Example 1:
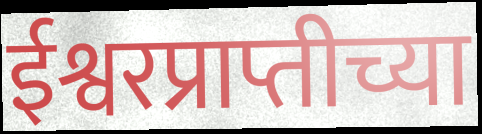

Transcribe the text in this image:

ईश्वरप्राप्तीच्या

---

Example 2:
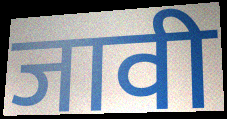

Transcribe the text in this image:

जावी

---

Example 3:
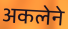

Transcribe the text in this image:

अकलेने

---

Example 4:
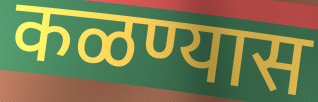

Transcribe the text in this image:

कळण्यास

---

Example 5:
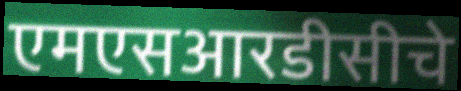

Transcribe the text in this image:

एमएसआरडीसीचे